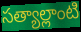
సత్యాల్లాంటి